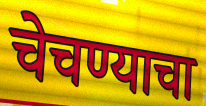
चेचण्याचा